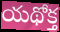
యథోక్త